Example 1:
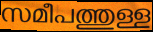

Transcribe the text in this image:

സമീപത്തുള്ള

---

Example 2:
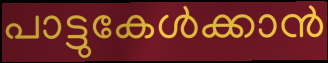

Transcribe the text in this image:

പാട്ടുകേൾക്കാൻ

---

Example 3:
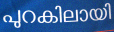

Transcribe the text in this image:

പുറകിലായി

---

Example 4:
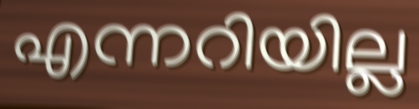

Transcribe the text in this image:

എന്നറിയില്ല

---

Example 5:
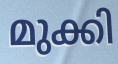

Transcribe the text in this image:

മുക്കി